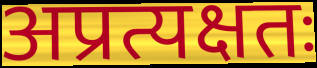
अप्रत्यक्षतः